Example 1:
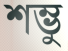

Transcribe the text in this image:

শম্ভু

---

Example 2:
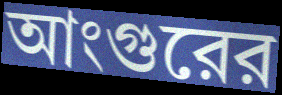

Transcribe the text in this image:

আংগুরের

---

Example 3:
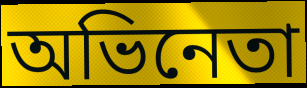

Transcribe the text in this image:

অভিনেতা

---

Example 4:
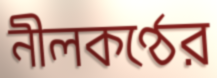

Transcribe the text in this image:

নীলকণ্ঠের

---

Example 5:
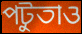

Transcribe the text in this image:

পটুতাও